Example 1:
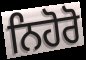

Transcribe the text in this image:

ਨਿਹੋਰੋ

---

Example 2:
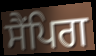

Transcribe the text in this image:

ਸੈਂਪਿਗ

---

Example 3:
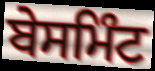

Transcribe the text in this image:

ਬੇਸਮਿੰਟ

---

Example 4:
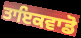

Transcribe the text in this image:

ਤਾਇਕਵਾਡੋ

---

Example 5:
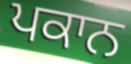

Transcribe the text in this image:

ਪਕਾਨ